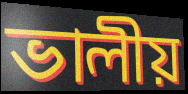
ভালীয়